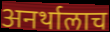
अनर्थालाच